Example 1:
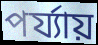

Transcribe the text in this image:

পৰ্য্যায়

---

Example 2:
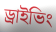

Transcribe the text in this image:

ড্ৰাইভিং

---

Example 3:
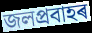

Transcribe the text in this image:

জলপ্ৰবাহৰ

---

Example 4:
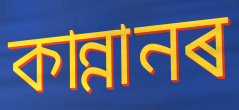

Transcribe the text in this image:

কান্নানৰ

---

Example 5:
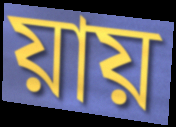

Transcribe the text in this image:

য়ায়